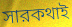
সারকথাই